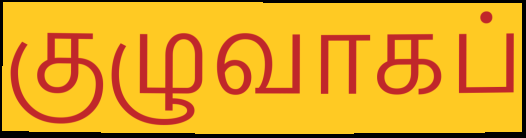
குழுவாகப்